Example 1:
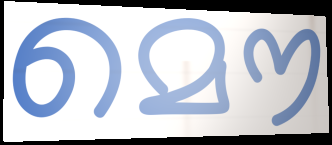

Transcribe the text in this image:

മൌ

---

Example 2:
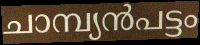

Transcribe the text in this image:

ചാമ്പ്യൻപട്ടം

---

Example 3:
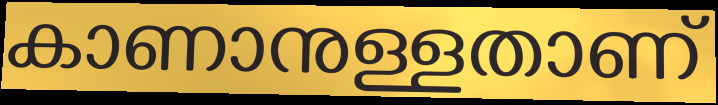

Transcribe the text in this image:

കാണാനുള്ളതാണ്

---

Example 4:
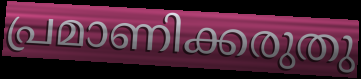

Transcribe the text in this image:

പ്രമാണിക്കരുതു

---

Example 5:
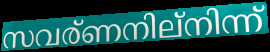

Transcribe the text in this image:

സവര്ണനില്നിന്ന്